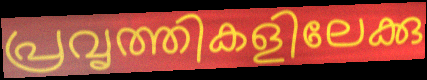
പ്രവൃത്തികളിലേക്കു